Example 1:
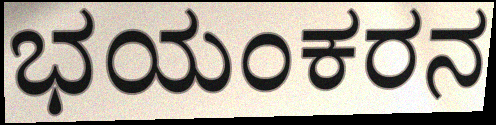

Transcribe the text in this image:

ಭಯಂಕರನ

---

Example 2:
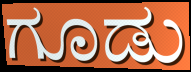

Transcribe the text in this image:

ಗೂಡು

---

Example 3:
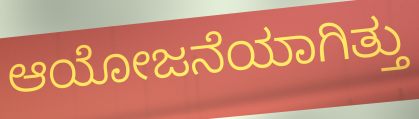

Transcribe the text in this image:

ಆಯೋಜನೆಯಾಗಿತ್ತು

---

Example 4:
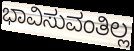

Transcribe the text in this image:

ಭಾವಿಸುವಂತಿಲ್ಲ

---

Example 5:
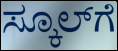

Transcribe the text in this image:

ಸ್ಕೂಲ್‌ಗೆ